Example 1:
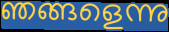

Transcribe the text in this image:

ഞങ്ങളെന്നു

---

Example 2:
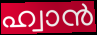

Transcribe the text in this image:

ഹ്വാൻ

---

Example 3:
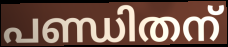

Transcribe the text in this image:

പണ്ഡിതന്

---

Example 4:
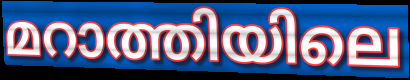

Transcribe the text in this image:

മറാത്തിയിലെ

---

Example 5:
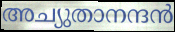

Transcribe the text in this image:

അച്യുതാനന്ദൻ